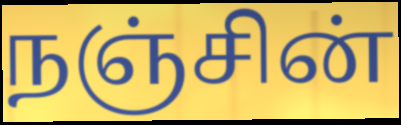
நஞ்சின்